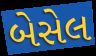
બેસેલ